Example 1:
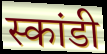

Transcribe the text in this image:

स्कांडी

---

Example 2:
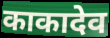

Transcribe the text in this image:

काकादेव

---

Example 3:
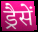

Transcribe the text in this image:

ड्रैसें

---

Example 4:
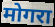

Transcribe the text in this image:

मोगरा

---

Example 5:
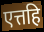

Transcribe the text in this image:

एत्तहि